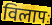
विलापः